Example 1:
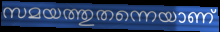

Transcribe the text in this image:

സമയത്തുതന്നെയാണ്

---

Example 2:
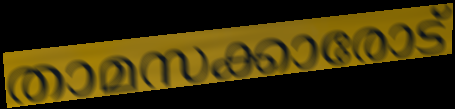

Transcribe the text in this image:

താമസക്കാരോട്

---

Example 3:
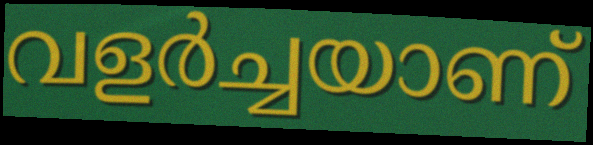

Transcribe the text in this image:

വളർച്ചയാണ്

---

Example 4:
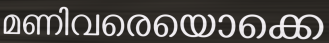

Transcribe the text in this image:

മണിവരെയൊക്കെ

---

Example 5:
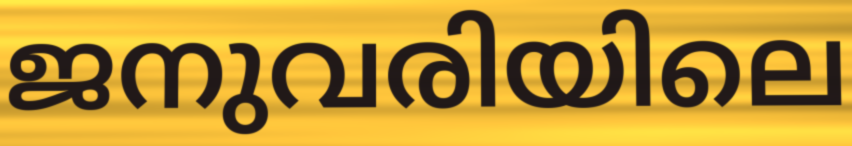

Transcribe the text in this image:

ജനുവരിയിലെ